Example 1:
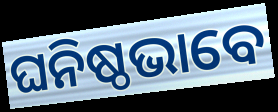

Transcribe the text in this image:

ଘନିଷ୍ଠଭାବେ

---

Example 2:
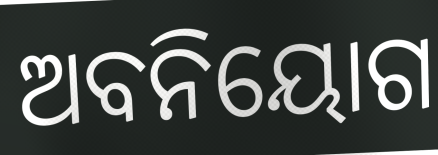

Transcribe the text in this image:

ଅବନିୟୋଗ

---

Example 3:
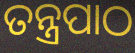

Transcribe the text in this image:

ତନ୍ତ୍ରପାଠ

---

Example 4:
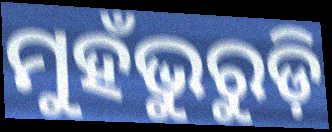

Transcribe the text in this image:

ମୁହଁଭୁରୁଡ଼ି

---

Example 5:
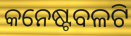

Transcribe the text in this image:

କନେଷ୍ଟବଳଟି